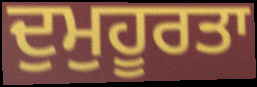
ਦੁਮੁਹੂਰਤਾ